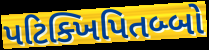
પટિક્ખિપિતબ્બો